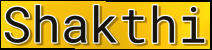
Shakthi